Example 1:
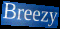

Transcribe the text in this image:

Breezy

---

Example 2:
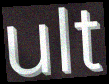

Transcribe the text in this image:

ult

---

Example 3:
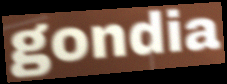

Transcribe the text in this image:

gondia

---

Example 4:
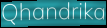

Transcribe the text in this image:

Qhandrika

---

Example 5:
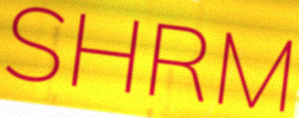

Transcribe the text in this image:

SHRM